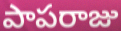
పాపరాజు